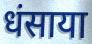
धंसाया